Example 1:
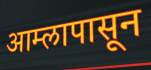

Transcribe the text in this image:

आम्लापासून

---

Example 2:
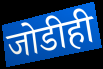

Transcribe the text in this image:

जोडीही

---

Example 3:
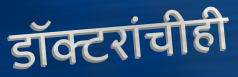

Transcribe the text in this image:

डॉक्टरांचीही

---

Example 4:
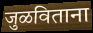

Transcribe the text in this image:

जुळविताना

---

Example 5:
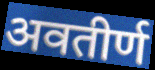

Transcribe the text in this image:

अवतीर्ण